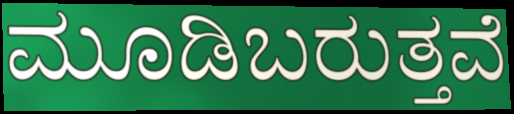
ಮೂಡಿಬರುತ್ತವೆ